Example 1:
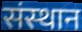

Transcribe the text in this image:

संस्‍थान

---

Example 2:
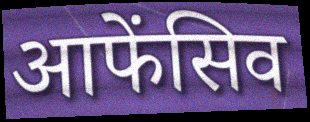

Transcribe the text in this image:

आफेंसिव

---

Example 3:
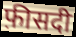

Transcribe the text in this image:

फ़ीसदी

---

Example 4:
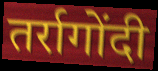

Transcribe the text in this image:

तर्रागोंदी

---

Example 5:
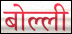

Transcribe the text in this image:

बोल्ली